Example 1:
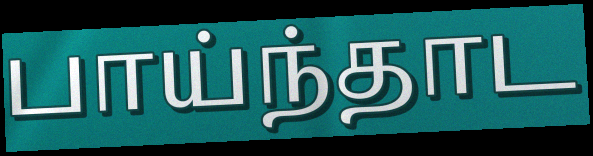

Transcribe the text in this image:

பாய்ந்தாட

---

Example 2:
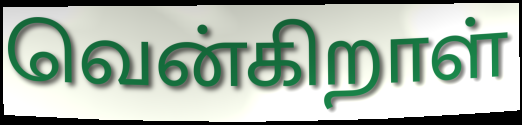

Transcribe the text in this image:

வென்கிறாள்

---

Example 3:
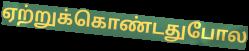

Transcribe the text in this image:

ஏற்றுக்கொண்டதுபோல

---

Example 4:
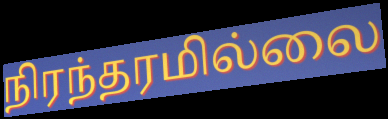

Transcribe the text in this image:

நிரந்தரமில்லை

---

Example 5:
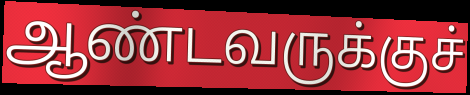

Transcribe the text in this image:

ஆண்டவருக்குச்